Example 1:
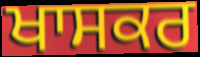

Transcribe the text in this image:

ਖਾਸਕਰ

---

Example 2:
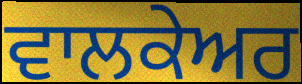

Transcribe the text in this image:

ਵਾਲਕੇਅਰ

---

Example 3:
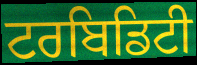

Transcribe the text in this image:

ਟਰਬਿਡਿਟੀ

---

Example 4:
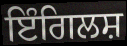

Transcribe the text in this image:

ਇੰਗਿਲਸ਼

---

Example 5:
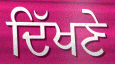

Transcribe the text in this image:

ਦਿੱਖਣੇ